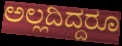
ಅಲ್ಲದಿದ್ದರೂ